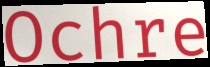
Ochre